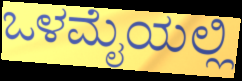
ಒಳಮೈಯಲ್ಲಿ